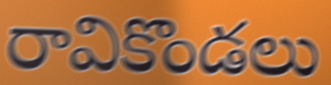
రావికొండలు